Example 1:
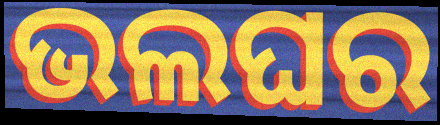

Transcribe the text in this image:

ଭଲଘର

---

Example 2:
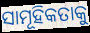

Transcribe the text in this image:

ସାମୂହିକତାକୁ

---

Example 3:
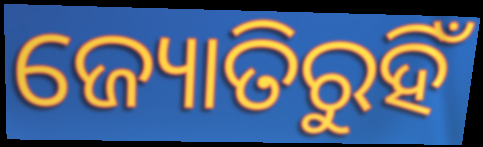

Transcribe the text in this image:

ଜ୍ୟୋତିରୁହିଁ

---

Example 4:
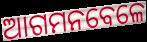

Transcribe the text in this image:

ଆଗମନବେଳେ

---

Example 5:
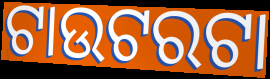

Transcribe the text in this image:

ଟାଉଟରଟା